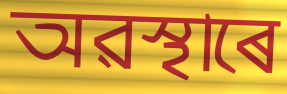
অৱস্থাৰে